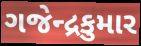
ગજેન્દ્રકુમાર